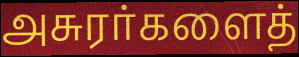
அசுரர்களைத்